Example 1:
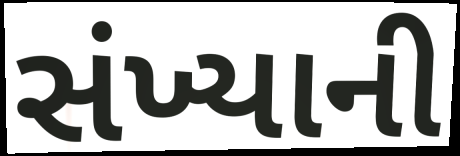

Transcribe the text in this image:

સંખ્યાની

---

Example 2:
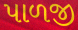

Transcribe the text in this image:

પાળજી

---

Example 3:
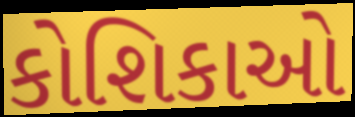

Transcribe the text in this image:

કોશિકાઓ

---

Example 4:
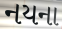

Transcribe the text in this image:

નયના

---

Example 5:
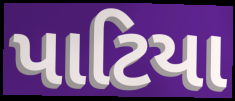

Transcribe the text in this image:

પાટિયા